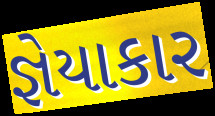
જ્ઞેયાકાર